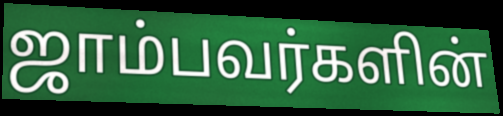
ஜாம்பவர்களின்